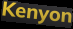
Kenyon